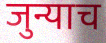
जुन्याच